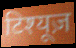
टिश्यूज़